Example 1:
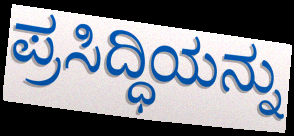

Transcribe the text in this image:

ಪ್ರಸಿದ್ಧಿಯನ್ನು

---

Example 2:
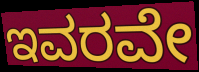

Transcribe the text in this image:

ಇವರವೇ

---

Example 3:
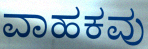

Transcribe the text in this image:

ವಾಹಕವು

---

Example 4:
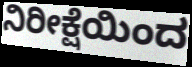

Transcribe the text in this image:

ನಿರೀಕ್ಷೆಯಿಂದ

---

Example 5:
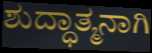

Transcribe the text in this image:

ಶುದ್ಧಾತ್ಮನಾಗಿ